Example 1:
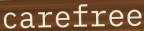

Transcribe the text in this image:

carefree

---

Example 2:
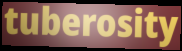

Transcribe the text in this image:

tuberosity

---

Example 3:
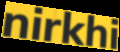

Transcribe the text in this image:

nirkhi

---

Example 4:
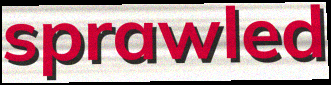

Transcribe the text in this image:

sprawled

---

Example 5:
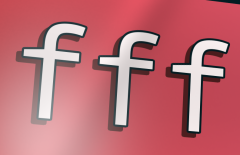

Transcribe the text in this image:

fff